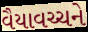
વૈયાવચ્ચને